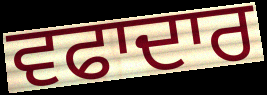
ਵਫਾਦਾਰ